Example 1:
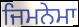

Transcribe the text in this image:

ਜਿਮਨੇਮਾ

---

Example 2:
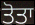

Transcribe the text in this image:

ਤੋਤਾ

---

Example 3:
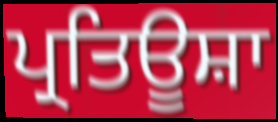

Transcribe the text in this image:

ਪ੍ਰਤਿਊਸ਼ਾ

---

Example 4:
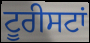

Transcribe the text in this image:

ਟੂਰੀਸਟਾਂ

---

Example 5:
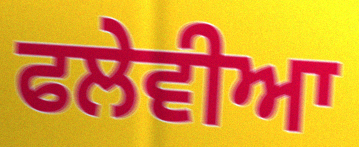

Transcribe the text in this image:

ਫਲੇਵੀਆ